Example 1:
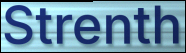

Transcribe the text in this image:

Strenth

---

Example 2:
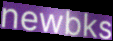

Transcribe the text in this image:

newbks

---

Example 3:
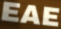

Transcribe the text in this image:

EAE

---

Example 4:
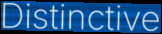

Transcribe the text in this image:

Distinctive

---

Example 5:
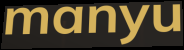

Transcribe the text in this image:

manyu